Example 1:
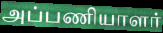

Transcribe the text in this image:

அப்பணியாளர்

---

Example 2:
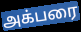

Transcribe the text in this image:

அக்பரை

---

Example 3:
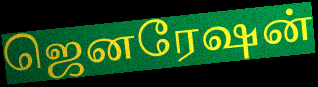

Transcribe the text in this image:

ஜெனரேஷன்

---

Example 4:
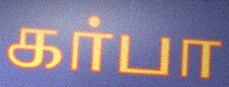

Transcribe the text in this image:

கர்பா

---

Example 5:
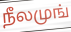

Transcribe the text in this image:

நீலமுங்